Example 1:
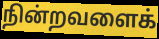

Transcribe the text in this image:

நின்றவளைக்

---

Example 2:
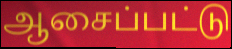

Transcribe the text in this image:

ஆசைப்பட்டு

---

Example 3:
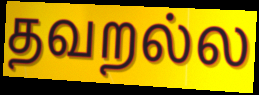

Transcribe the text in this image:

தவறல்ல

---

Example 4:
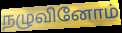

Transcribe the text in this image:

நழுவினோம்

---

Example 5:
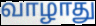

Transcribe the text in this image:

வாழாது